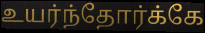
உயர்ந்தோர்க்கே